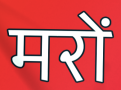
मरों